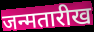
जन्मतारीख